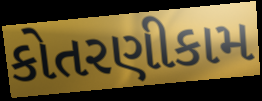
કોતરણીકામ